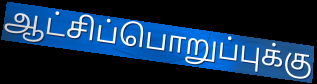
ஆட்சிப்பொறுப்புக்கு